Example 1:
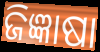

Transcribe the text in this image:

ଜିଜ୍ଞାଷା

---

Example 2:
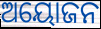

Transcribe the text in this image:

ଅୟୋଜନ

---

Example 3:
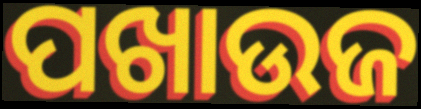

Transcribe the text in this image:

ପଖାଉଜ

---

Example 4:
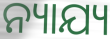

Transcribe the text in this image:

ନ୍ୟାଯ୍ୟ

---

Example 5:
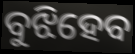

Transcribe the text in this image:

ବୁଝିହେବ